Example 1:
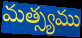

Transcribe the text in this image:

మత్స్యము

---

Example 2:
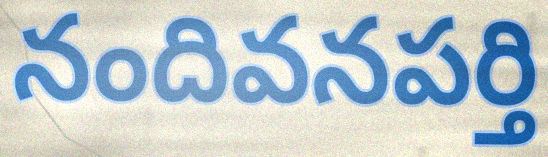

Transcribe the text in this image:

నందివనపర్తి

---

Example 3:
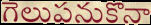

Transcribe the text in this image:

గెలుపనుకొనా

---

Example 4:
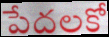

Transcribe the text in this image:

పేదలకో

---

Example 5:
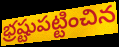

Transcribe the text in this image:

భ్రష్టుపట్టించిన